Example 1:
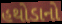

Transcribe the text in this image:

હથોડાનો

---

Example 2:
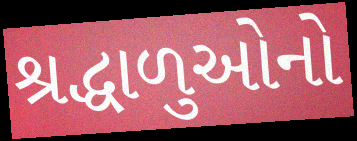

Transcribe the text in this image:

શ્રદ્ધાળુઓનો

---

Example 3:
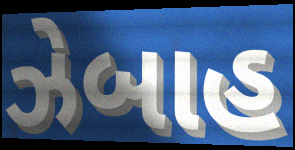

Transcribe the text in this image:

ઝેબાહ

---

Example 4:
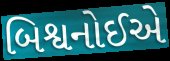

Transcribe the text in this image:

બિશ્વનોઈએ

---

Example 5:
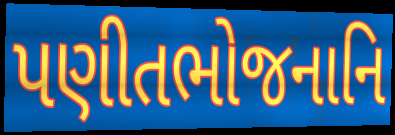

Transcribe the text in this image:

પણીતભોજનાનિ